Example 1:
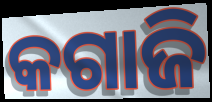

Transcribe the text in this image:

କଗାଜି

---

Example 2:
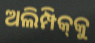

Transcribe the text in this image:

ଅଲିମ୍ପିକ୍‌କୁ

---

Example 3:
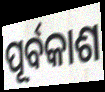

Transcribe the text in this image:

ପୂର୍ବକାଶ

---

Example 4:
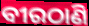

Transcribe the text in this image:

ବୀରଠାଣି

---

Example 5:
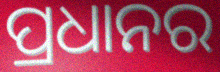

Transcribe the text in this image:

ପ୍ରଧାନର